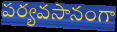
పర్యవసానంగా